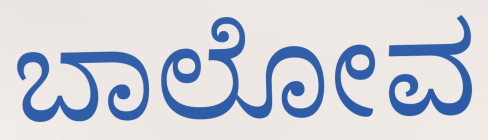
ಬಾಲೋವ